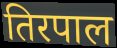
तिरपाल